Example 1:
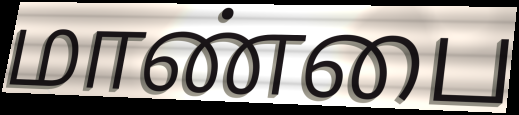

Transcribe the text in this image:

மாண்பை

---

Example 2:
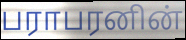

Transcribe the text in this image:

பராபரனின்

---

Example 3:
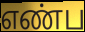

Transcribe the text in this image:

எண்ப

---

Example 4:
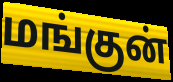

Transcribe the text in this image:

மங்குன்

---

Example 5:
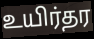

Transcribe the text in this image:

உயிர்தர